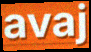
avaj